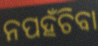
ନପହଁଚିବା